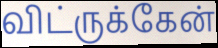
விட்ருக்கேன்